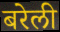
बरेली